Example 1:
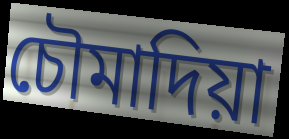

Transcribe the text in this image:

চৌমাদিয়া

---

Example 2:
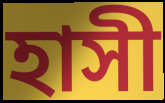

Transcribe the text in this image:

হাসী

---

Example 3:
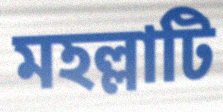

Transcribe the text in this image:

মহল্লাটি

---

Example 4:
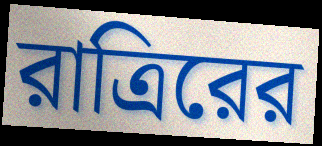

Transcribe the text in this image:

রাত্রিরের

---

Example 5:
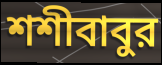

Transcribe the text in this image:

শশীবাবুর